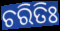
ଚରିତିଃ